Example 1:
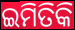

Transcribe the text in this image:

ଇମିତିକି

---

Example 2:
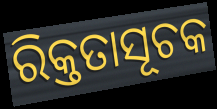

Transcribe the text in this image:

ରିକ୍ତତାସୂଚକ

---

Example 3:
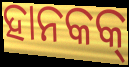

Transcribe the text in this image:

ହାନକକ୍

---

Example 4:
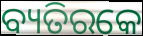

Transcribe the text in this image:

ବ୍ୟତିରକେ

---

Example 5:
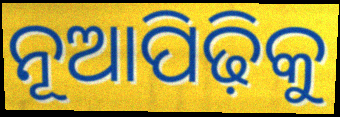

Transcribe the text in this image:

ନୂଆପିଢ଼ିକୁ